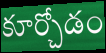
కూర్చోడం